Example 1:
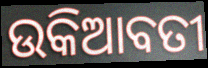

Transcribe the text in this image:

ଉକିଆବତୀ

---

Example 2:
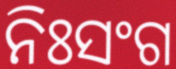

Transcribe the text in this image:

ନିଃସଂଗ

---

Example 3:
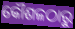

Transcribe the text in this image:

କୌଶଳଠାରୁ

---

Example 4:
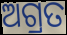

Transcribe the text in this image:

ଅଗ୍ରତ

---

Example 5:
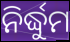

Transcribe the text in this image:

ନିର୍ଦ୍ଧୁମ